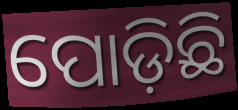
ପୋଡ଼ିଛି